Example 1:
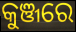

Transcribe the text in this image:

କୁଞ୍ଜରେ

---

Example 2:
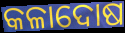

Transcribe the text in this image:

କଳାଦୋଷ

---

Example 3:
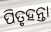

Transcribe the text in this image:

ପିତୃହନ୍ତା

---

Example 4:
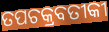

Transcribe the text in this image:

ତପଚକ୍ରବତୀକୀ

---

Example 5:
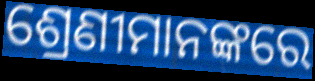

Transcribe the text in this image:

ଶ୍ରେଣୀମାନଙ୍କରେ